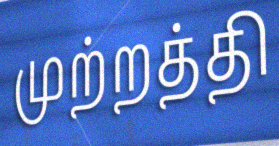
முற்றத்தி